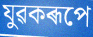
যুৱকৰূপে